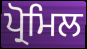
ਪ੍ਰੋਮਿਲ